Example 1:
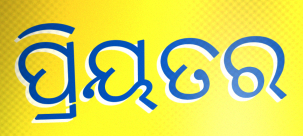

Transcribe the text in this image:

ପ୍ରିୟତର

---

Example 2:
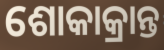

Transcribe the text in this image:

ଶୋକାକ୍ରାନ୍ତ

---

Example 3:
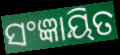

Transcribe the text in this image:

ସଂଜ୍ଞାୟିତ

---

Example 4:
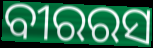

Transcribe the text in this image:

ବୀରରସ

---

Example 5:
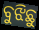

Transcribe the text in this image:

ବୁଝିଛୁ